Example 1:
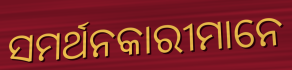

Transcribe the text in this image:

ସମର୍ଥନକାରୀମାନେ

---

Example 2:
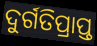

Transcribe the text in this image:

ଦୁର୍ଗତିପ୍ରାପ୍ତ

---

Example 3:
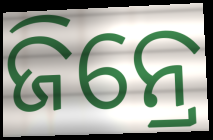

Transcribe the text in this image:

ଜିନ୍ରେ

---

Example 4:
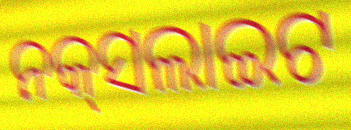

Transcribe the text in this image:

ନକ୍‌ସଲାଇଟ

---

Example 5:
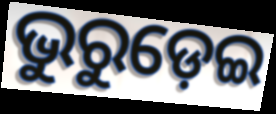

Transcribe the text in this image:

ଭୁରୁଡ଼େଇ